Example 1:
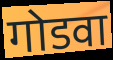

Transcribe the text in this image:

गोडवा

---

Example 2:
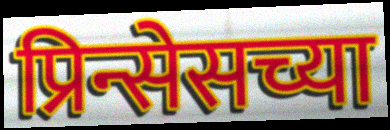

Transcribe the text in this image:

प्रिन्सेसच्या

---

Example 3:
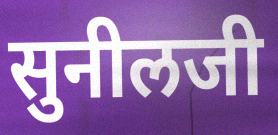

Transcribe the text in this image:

सुनीलजी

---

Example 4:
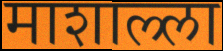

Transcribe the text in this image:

माशाल्ला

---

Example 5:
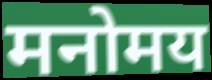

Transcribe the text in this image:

मनोमय